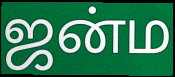
ஜன்ம